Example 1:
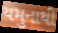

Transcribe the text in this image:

યમુનાથી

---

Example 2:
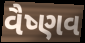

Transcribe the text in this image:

વૈષ્ણવ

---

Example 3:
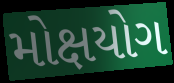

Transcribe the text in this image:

મોક્ષયોગ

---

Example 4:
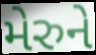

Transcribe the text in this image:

મેરુને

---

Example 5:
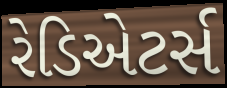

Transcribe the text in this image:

રેડિએટર્સ